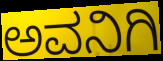
ಅವನಿಗಿ